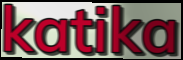
katika